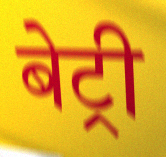
बेट्री